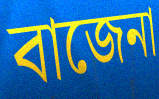
বাজেনা